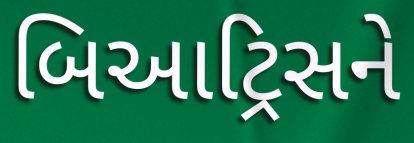
બિઆટ્રિસને